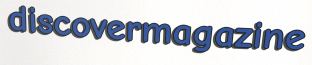
discovermagazine